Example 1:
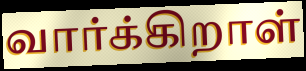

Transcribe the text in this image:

வார்க்கிறாள்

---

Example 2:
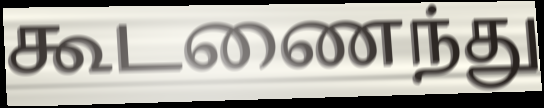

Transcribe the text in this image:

கூடணைந்து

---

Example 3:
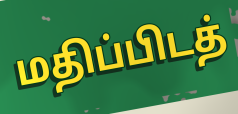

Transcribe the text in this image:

மதிப்பிடத்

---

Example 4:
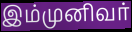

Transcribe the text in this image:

இம்முனிவர்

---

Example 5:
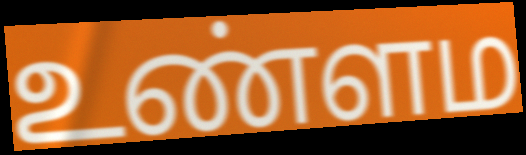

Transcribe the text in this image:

உண்ளம